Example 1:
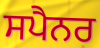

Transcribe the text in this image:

ਸਪੈਨਰ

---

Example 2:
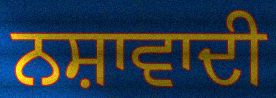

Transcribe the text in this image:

ਨਸ਼ਾਵਾਦੀ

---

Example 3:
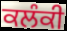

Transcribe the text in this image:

ਕਲੰਕੀ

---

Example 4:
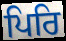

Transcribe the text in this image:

ਪਿਰਿ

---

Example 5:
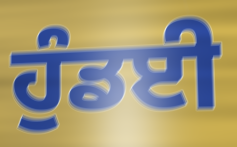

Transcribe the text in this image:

ਹੁੰਡਈ